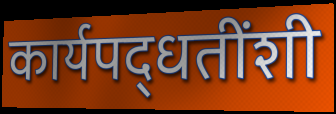
कार्यपद्धतींशी